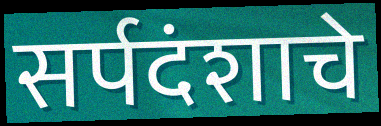
सर्पदंशाचे